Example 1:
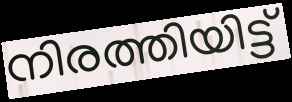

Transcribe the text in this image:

നിരത്തിയിട്ട്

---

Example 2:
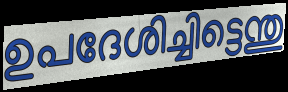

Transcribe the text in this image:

ഉപദേശിച്ചിട്ടെന്തു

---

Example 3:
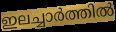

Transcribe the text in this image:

ഇലച്ചാർത്തിൽ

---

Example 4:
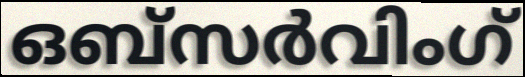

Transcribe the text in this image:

ഒബ്സർവിംഗ്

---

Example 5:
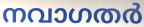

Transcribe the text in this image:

നവാഗതർ